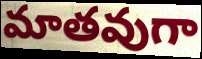
మాతవుగా